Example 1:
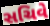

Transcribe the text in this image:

સચિવે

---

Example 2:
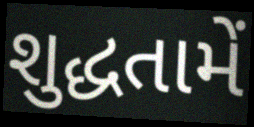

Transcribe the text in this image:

શુદ્ધતામેં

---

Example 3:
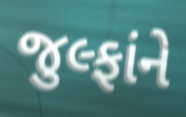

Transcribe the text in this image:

જુલ્ફાંને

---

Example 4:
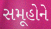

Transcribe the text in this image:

સમૂહોને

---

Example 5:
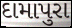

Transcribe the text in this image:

દામાપુરા